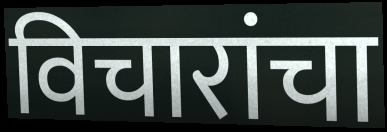
विचारांचा